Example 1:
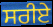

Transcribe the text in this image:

ਸਰੀਏ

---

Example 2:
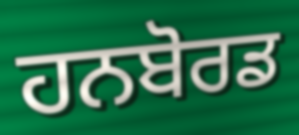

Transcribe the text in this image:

ਹਨਬੋਰਡ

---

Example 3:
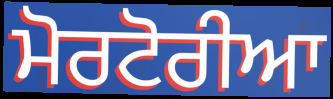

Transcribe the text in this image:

ਮੋਰਟੋਰੀਆ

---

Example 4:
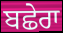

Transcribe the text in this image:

ਬਛੇਰਾ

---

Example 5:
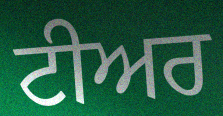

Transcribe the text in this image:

ਟੀਅਰ